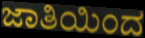
ಜಾತಿಯಿಂದ